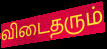
விடைதரும்